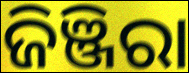
ଜିଞ୍ଜିରା